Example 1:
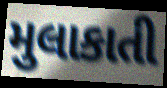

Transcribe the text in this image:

મુલાકાતી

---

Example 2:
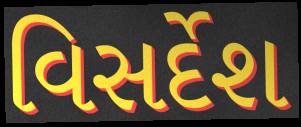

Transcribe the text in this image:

વિસર્દેશ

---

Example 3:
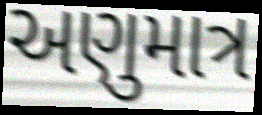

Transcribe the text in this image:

અણુમાત્ર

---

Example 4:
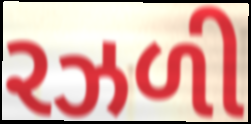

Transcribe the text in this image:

રઝળી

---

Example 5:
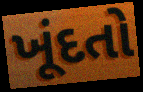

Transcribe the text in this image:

ખૂંદતો